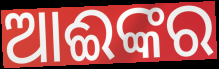
ଆଈଙ୍କର